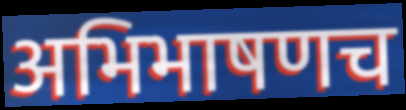
अभिभाषणच